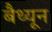
बैथ्यून